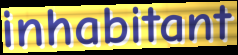
inhabitant